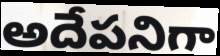
అదేపనిగా